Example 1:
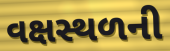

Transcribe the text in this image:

વક્ષસ્થળની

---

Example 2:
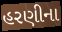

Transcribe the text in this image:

હરણીના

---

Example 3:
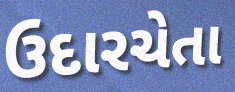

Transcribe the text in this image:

ઉદારચેતા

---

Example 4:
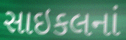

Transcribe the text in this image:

સાઇકલનાં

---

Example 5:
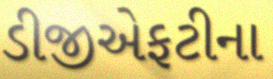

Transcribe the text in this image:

ડીજીએફટીના